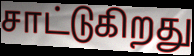
சாட்டுகிறது